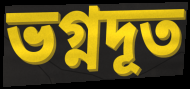
ভগ্নদূত